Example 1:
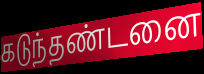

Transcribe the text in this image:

கடுந்தண்டனை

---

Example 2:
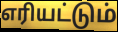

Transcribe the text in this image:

எரியட்டும்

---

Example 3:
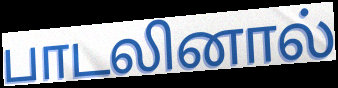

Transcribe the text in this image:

பாடலினால்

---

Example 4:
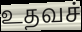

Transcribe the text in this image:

உதவச்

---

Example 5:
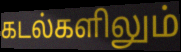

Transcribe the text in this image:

கடல்களிலும்